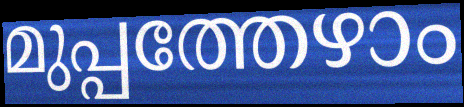
മുപ്പത്തേഴാം